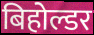
बिहोल्डर